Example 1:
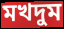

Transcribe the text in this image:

মখদুম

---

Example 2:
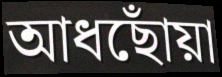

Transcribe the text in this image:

আধছোঁয়া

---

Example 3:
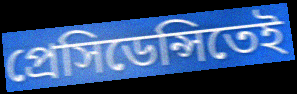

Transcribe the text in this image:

প্রেসিডেন্সিতেই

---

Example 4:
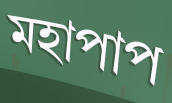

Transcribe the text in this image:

মহাপাপ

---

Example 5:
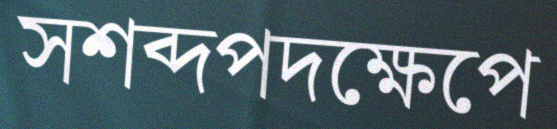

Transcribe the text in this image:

সশব্দপদক্ষেপে